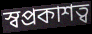
স্বপ্রকাশত্ব